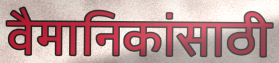
वैमानिकांसाठी